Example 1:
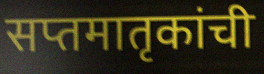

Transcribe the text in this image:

सप्तमातृकांची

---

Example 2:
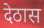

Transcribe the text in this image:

देठास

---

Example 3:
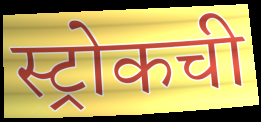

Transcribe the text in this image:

स्ट्रोकची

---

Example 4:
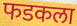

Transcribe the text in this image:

फडकला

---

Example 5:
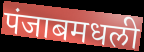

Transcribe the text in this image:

पंजाबमधली